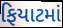
ફિયાટમાં